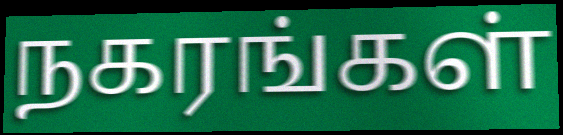
நகரங்கள்